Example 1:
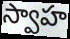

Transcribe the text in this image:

స్వాహ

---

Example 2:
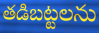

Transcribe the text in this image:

తడిబట్టలను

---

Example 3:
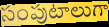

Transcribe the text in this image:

సంపుటాలుగా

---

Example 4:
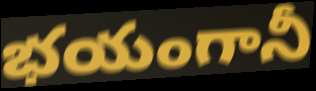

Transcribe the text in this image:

భయంగానీ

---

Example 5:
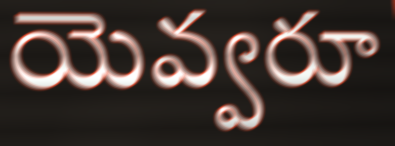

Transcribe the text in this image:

యెవ్వరూ